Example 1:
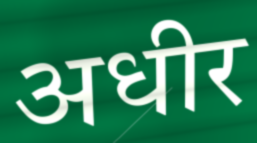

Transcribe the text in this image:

अधीर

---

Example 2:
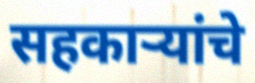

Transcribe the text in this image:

सहकाऱ्यांचे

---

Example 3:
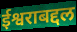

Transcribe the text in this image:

ईश्वराबद्दल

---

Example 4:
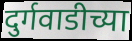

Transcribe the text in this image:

दुर्गवाडीच्या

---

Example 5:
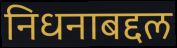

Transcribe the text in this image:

निधनाबद्दल